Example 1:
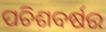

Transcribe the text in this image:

ପଚିଶବର୍ଷର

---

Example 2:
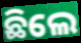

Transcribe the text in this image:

ଛିଲେ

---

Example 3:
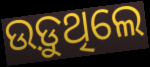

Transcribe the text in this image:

ଉଡ଼ୁଥିଲେ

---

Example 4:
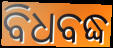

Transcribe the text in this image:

ବିଧବଦ୍ଧ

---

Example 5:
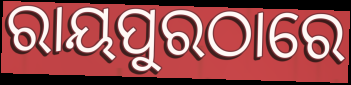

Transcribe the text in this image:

ରାୟପୁରଠାରେ